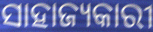
ସାହାଜ୍ଯକାରୀ